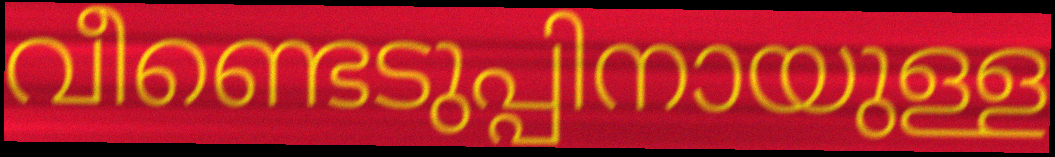
വീണ്ടെടുപ്പിനായുള്ള